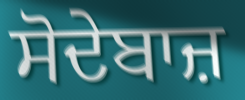
ਸੋਦੇਬਾਜ਼